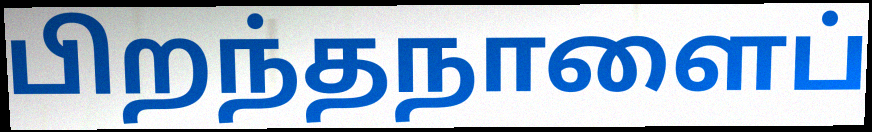
பிறந்தநாளைப்